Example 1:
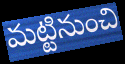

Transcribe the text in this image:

మట్టినుంచి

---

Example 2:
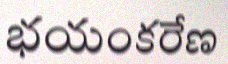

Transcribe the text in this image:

భయంకరేణ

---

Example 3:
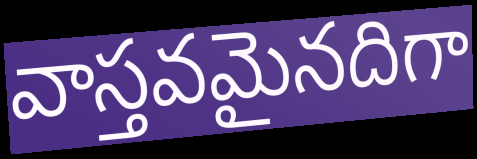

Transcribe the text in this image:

వాస్తవమైనదిగా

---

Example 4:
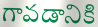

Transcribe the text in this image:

గావడానికి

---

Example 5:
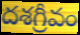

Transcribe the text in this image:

దశగ్రీవం